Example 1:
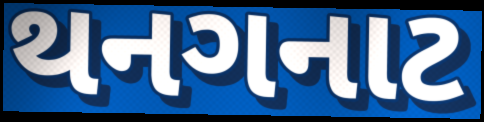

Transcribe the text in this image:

થનગનાટ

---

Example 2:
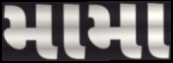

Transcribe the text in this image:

મામા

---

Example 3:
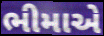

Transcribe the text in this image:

ભીમાએ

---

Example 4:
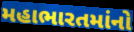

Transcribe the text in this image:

મહાભારતમાંનો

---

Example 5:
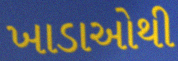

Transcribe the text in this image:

ખાડાઓથી